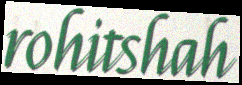
rohitshah